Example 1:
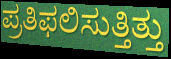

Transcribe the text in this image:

ಪ್ರತಿಫಲಿಸುತ್ತಿತ್ತು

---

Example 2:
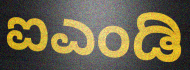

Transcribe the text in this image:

ಐಎಂಡಿ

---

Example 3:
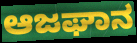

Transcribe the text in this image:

ಆಜಘಾನ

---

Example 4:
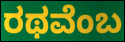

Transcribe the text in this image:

ರಥವೆಂಬ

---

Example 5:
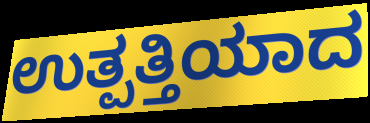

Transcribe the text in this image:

ಉತ್ಪತ್ತಿಯಾದ